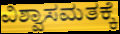
ವಿಶ್ವಾಸಮತಕ್ಕೆ